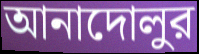
আনাদোলুর